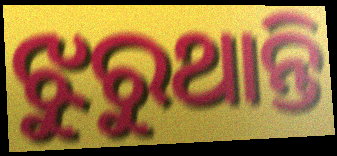
ଝୁରୁଥାନ୍ତି